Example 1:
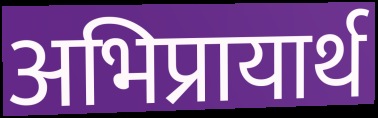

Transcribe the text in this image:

अभिप्रायार्थ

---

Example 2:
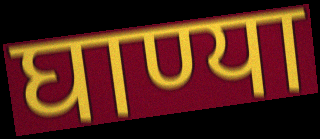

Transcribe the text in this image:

घाण्या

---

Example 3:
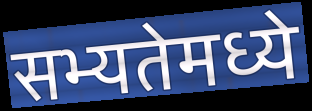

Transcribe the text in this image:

सभ्यतेमध्ये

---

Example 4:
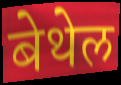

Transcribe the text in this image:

बेथेल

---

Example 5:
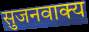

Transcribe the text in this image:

सुजनवाक्य